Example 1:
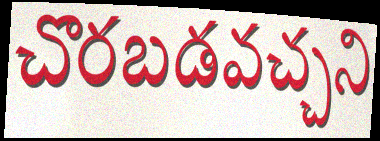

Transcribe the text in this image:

చొరబడవచ్చని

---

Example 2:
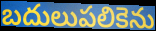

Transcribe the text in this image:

బదులుపలికెను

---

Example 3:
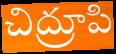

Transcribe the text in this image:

చిద్రూపి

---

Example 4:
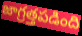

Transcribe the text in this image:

జాగ్రత్తపడింది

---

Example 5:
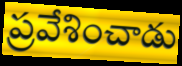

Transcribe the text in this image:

ప్రవేశించాడు